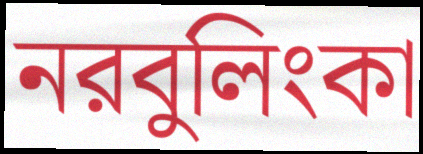
নরবুলিংকা